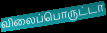
விலைப்பொருட்டா